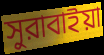
সুরাবাইয়া